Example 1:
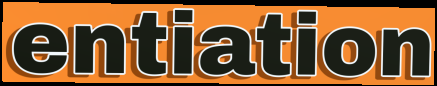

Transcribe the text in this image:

entiation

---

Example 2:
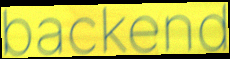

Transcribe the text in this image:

backend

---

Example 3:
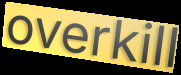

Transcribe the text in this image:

overkill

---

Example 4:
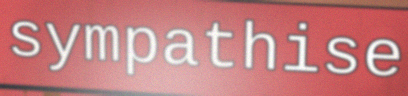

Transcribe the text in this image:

sympathise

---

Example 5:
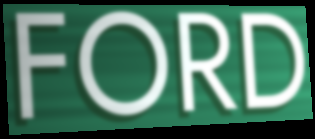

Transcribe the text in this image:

FORD